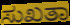
ಸುಖತಾ